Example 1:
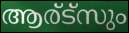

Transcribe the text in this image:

ആര്ട്സും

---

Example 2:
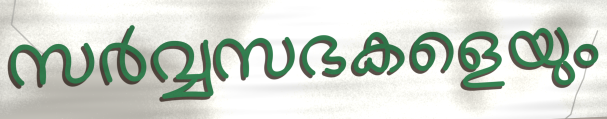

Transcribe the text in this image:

സർവ്വസഭകളെയും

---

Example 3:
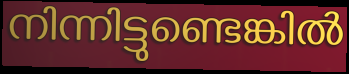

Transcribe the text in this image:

നിന്നിട്ടുണ്ടെങ്കിൽ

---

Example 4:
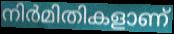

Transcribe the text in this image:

നിർമിതികളാണ്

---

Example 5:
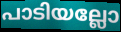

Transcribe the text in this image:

പാടിയല്ലോ